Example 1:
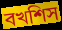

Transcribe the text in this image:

বখশিস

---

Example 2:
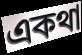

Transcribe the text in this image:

একথা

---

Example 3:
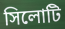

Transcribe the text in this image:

সিলোটি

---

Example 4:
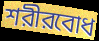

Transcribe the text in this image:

শরীরবোধ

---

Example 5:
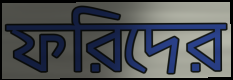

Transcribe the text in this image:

ফরিদের